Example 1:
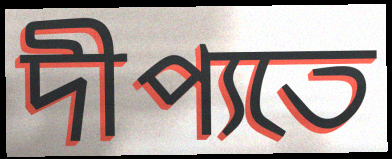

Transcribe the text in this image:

দীপ্যতে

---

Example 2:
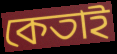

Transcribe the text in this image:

কেতাই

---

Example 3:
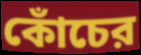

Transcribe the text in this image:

কোঁচের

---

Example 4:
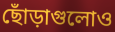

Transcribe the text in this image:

ছোঁড়াগুলোও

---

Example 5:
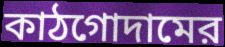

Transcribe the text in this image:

কাঠগোদামের